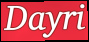
Dayri